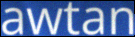
awtan